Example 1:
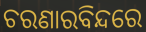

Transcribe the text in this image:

ଚରଣାରବିନ୍ଦରେ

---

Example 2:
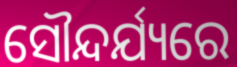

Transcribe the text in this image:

ସୌନ୍ଦର୍ଯ୍ୟରେ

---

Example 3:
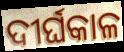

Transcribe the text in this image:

ଦୀର୍ଘକାଳ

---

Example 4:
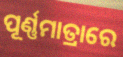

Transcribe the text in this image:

ପୂର୍ଣ୍ଣମାତ୍ରାରେ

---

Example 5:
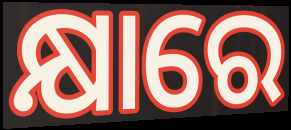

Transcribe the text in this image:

କ୍ଷାରେ